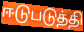
ஈடுபடுத்தி